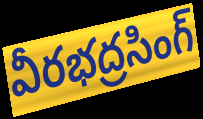
వీరభద్రసింగ్